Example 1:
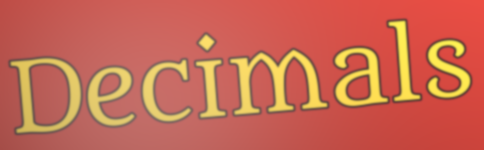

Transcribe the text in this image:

Decimals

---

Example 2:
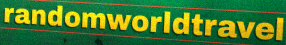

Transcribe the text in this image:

randomworldtravel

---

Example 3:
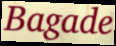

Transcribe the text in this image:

Bagade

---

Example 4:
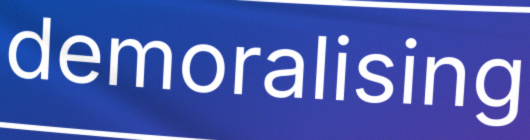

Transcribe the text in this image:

demoralising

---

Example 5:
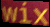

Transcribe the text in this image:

wix